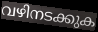
വഴിനടക്കുക